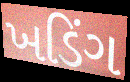
ખડિંગ